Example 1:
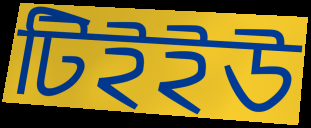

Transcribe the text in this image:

টিইইউ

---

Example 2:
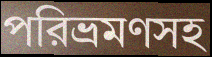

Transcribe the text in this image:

পরিভ্রমণসহ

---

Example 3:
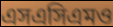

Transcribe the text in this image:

এসএসিএমও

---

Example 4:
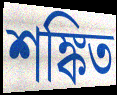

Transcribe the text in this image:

শঙ্কিত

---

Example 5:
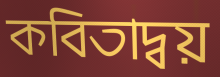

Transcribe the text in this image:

কবিতাদ্বয়